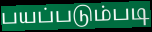
பயப்படும்படி